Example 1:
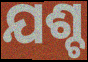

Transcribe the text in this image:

ଯଶ୍ଚ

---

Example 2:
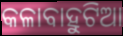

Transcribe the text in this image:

କଳାବାହୁଟିଆ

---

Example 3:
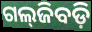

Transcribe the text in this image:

ଗଲ୍‌ଜିବଡ଼ି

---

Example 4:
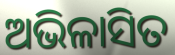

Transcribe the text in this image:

ଅଭିଳାସିତ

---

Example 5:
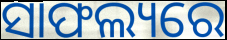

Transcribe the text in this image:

ସାଫଲ୍ୟରେ